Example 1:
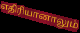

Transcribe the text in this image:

எதிரியானாலும்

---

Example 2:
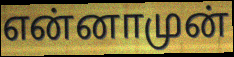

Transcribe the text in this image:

என்னாமுன்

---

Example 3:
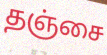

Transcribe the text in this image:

தஞ்சை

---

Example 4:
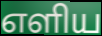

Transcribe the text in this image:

எளிய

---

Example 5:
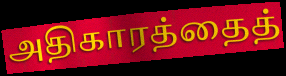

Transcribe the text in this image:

அதிகாரத்தைத்